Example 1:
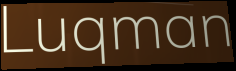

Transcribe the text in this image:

Luqman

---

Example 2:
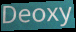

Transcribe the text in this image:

Deoxy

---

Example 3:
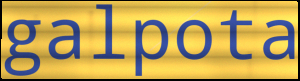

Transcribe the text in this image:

galpota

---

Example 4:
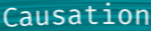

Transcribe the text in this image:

Causation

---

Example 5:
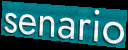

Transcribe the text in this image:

senario